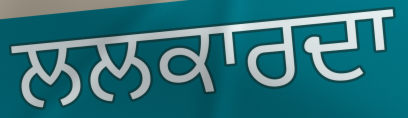
ਲਲਕਾਰਦਾ